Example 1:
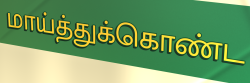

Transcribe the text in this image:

மாய்த்துக்கொண்ட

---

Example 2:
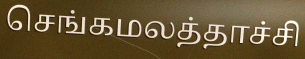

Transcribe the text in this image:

செங்கமலத்தாச்சி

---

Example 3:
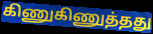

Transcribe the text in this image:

கிணுகிணுத்தது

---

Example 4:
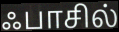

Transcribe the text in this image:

ஃபாசில்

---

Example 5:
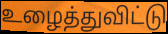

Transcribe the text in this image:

உழைத்துவிட்டு